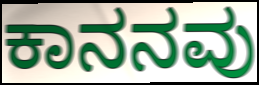
ಕಾನನವು